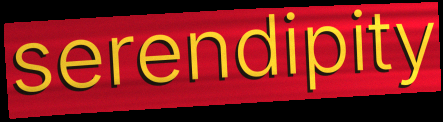
serendipity